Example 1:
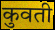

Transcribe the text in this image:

कुवती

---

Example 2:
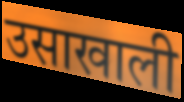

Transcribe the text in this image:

उसाखाली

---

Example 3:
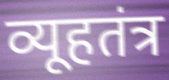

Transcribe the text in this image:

व्यूहतंत्र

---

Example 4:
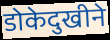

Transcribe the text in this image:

डोकेदुखीने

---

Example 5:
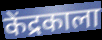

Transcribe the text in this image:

केंद्रकाला